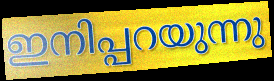
ഇനിപ്പറയുന്നു